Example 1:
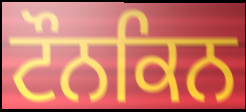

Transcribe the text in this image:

ਟੌਨਕਿਨ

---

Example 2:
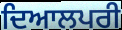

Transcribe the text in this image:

ਦਿਆਲਪਰੀ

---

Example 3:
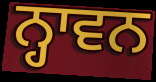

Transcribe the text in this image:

ਨ੍ਹਾਵਨ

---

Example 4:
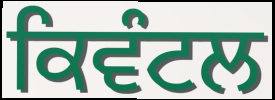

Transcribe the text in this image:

ਕਿਵੰਟਲ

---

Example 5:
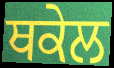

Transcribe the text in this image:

ਥਕੇਲ